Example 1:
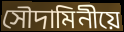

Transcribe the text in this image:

সৌদামিনীয়ে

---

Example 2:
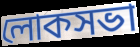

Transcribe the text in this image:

লোকসভা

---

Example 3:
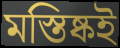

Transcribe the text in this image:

মস্তিষ্কই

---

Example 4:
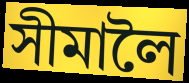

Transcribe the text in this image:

সীমালৈ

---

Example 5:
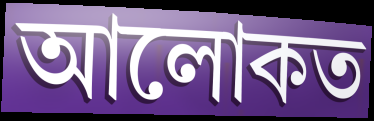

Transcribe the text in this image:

আলোকত